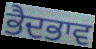
ਭੈਦਭਾਵ